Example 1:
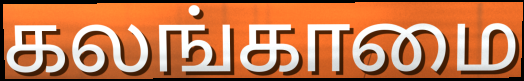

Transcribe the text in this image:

கலங்காமை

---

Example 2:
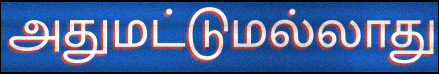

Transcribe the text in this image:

அதுமட்டுமல்லாது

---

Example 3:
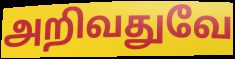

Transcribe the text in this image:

அறிவதுவே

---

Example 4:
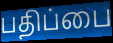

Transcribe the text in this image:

பதிப்பை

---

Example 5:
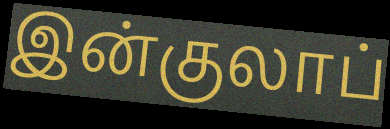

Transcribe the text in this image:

இன்குலாப்